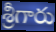
శ్రీగారు